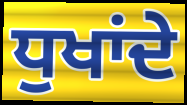
ਧੁਖਾਂਦੇ